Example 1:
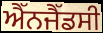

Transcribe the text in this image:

ਐੱਨਜੈੱਡਸੀ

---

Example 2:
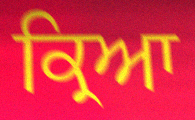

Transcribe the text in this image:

ਕ੍ਰਿਆ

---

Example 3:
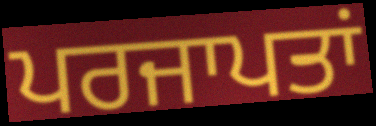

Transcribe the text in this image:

ਪਰਜਾਪਤਾਂ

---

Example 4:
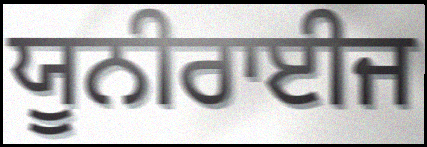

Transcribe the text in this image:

ਯੂਨੀਰਾਈਜ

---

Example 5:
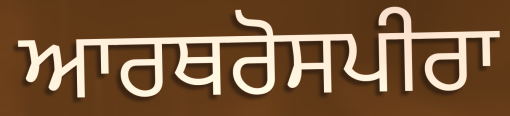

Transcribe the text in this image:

ਆਰਥਰੋਸਪੀਰਾ